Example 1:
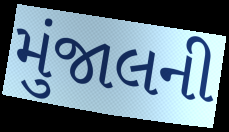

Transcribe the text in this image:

મુંજાલની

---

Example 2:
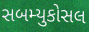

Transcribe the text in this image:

સબમ્યુકોસલ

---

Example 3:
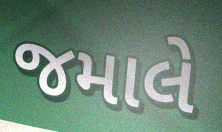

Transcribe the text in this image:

જમાલે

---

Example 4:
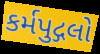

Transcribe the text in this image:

કર્મપુદ્ગલો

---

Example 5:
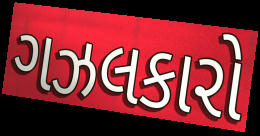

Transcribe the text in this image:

ગઝલકારો